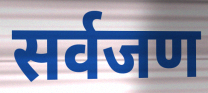
सर्वजण